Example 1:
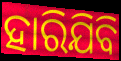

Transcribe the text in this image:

ହାରିଯିବି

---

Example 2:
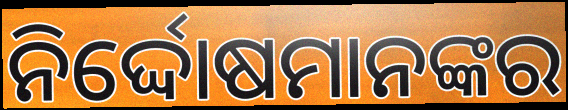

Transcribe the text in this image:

ନିର୍ଦ୍ଦୋଷମାନଙ୍କର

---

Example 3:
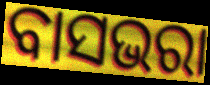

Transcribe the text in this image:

ବାସଭରା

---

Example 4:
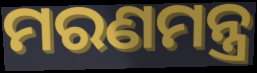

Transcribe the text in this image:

ମରଣମନ୍ତ୍ର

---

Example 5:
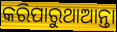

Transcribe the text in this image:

କରିପାରୁଥାଆନ୍ତା